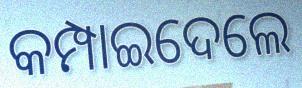
କମ୍ପାଇଦେଲେ